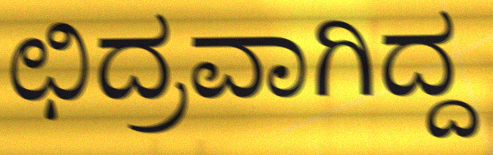
ಛಿದ್ರವಾಗಿದ್ದ